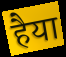
हैया